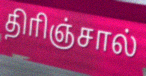
திரிஞ்சால்